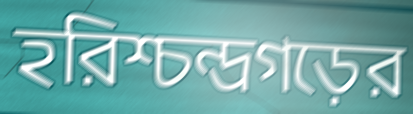
হরিশ্চন্দ্রগড়ের